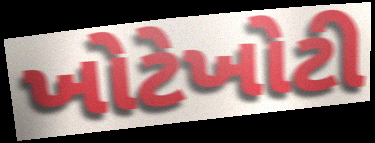
ખોટેખોટી